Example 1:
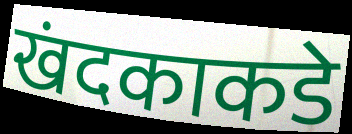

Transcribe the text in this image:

खंदकाकडे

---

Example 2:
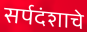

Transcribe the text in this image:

सर्पदंशाचे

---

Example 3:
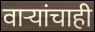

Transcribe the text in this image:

वाऱ्यांचाही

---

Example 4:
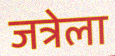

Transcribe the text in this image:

जत्रेला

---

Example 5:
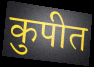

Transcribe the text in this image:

कुपीत